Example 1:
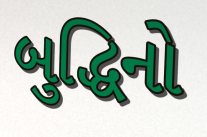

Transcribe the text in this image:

બુદ્ધિનો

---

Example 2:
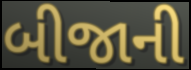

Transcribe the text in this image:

બીજાની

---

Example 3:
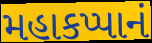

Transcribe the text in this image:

મહાકપ્પાનં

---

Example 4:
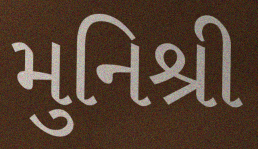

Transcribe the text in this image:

મુનિશ્રી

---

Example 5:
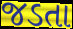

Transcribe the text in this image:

જડતા